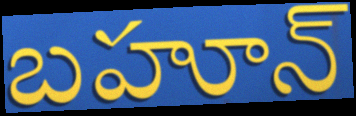
బహూన్